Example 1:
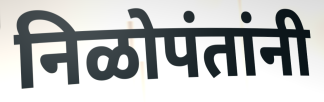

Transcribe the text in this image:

निळोपंतांनी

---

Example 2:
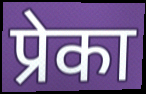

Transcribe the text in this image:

प्रेका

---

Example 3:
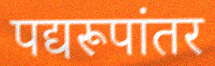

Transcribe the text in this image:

पद्यरूपांतर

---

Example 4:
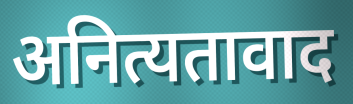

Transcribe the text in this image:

अनित्यतावाद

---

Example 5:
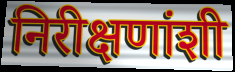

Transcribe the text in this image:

निरीक्षणांशी